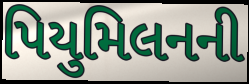
પિયુમિલનની